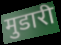
मुडारी